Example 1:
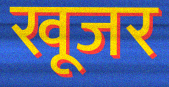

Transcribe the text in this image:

खूजर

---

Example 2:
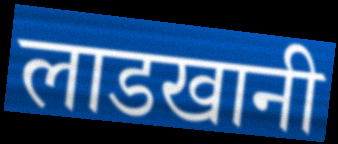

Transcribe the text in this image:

लाडखानी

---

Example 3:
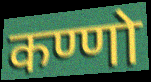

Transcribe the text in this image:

कण्णो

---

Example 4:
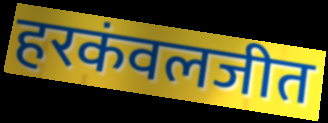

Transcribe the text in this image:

हरकंवलजीत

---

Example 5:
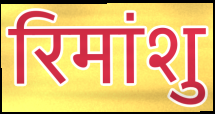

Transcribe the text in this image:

रिमांशु